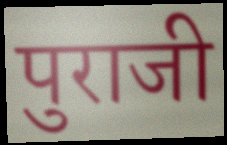
पुराजी